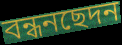
বন্ধনছেদন